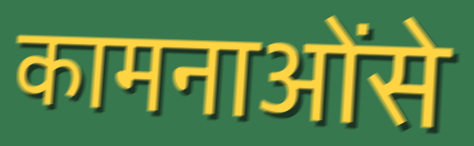
कामनाओंसे